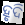
ହୃଦି